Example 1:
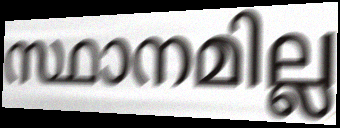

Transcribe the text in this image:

സ്ഥാനമില്ല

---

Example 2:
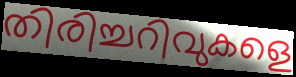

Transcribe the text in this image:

തിരിച്ചറിവുകളെ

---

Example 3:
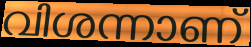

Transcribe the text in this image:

വിശന്നാണ്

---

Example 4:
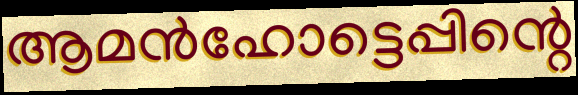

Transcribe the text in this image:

ആമൻഹോട്ടെപ്പിന്റെ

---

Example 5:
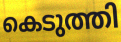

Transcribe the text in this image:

കെടുത്തി